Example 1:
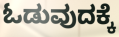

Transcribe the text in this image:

ಓಡುವುದಕ್ಕೆ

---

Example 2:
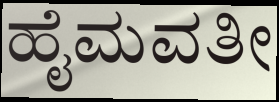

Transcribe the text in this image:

ಹೈಮವತೀ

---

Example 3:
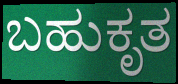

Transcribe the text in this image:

ಬಹುಕೃತ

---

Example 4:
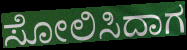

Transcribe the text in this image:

ಸೋಲಿಸಿದಾಗ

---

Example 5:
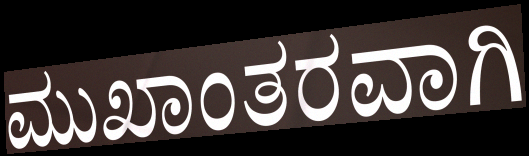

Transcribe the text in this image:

ಮುಖಾಂತರವಾಗಿ